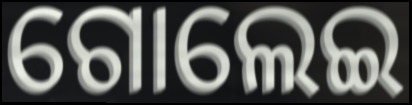
ଗୋଲେଇ